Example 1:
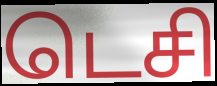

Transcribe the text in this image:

டெசி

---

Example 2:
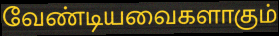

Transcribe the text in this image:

வேண்டியவைகளாகும்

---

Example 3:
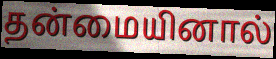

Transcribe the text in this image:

தன்மையினால்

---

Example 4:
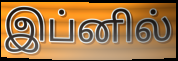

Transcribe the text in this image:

இப்னில்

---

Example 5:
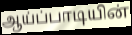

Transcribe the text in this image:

ஆய்ப்பாடியின்